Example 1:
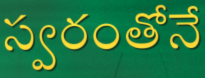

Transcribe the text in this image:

స్వరంతోనే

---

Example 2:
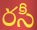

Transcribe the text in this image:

రసీ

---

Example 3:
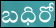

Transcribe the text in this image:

బధిరో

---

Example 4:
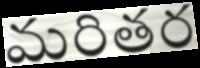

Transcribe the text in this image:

మరితర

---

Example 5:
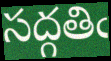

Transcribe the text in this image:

సద్గతిఁ